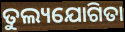
ତୁଲ୍ୟଯୋଗିତା